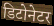
डिटोनेटर